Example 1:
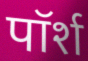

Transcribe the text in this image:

पॉर्श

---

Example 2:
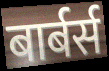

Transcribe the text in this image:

बार्बर्स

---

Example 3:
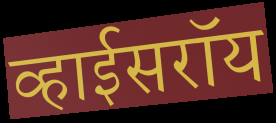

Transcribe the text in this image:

व्हाईसरॉय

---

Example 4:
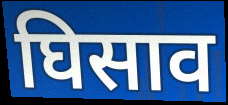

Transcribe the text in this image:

घिसाव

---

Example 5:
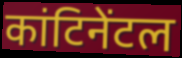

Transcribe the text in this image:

कांटिनेंटल